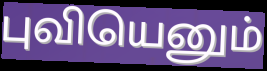
புவியெனும்